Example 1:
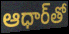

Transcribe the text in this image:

ఆధార్‌తో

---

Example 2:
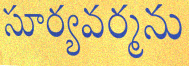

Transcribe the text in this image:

సూర్యవర్మను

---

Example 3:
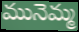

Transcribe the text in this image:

మునెమ్మ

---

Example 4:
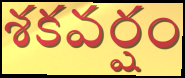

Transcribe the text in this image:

శకవర్షం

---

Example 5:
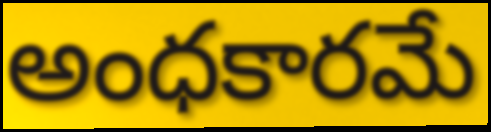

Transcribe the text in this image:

అంధకారమే